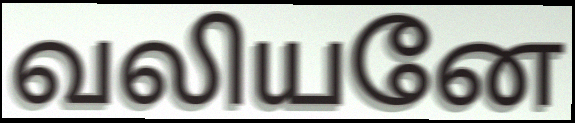
வலியனே